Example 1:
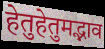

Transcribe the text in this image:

हेतुहेतुमद्भाव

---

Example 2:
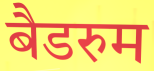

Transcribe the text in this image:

बैडरुम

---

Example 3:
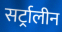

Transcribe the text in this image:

सर्ट्रालीन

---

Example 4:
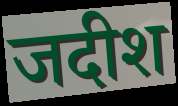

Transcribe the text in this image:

जदीश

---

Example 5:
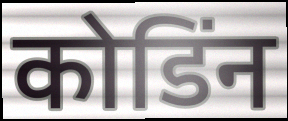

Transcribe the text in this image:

कोडिंन